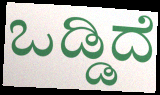
ಒಡ್ಡಿದೆ